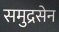
समुद्रसेन